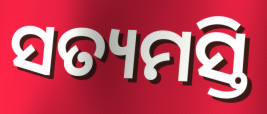
ସତ୍ୟମସ୍ତି